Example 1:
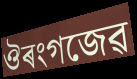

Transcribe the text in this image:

ঔৰংগজেৱ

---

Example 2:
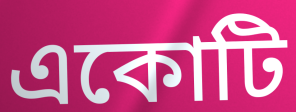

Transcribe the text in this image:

একোটি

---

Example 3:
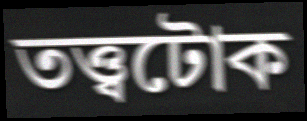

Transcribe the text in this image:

তত্ত্বটোক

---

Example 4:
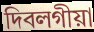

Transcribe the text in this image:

দিবলগীয়া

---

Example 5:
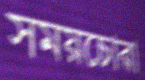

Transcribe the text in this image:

সময়চোৱা